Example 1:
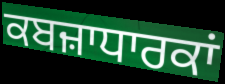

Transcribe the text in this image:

ਕਬਜ਼ਾਧਾਰਕਾਂ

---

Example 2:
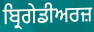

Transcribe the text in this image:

ਬ੍ਰਿਗੇਡੀਅਰਜ਼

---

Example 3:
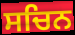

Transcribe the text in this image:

ਸਚਿਨ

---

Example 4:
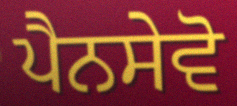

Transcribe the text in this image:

ਪੈਨਸੇਵੋ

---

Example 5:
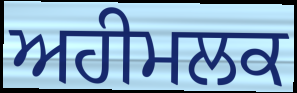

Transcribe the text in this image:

ਅਹੀਮਲਕ